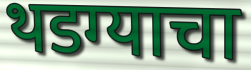
थडग्याचा